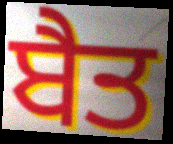
ਬੈਤ